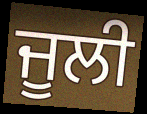
ਜੂਲੀ